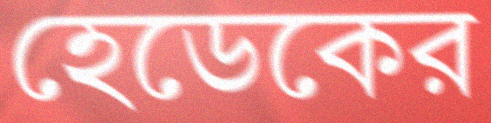
হেডেকের